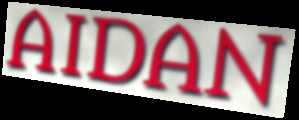
AIDAN